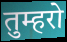
तुम्हरो